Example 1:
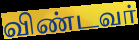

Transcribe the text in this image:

விண்டவர்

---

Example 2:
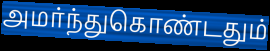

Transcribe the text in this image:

அமர்ந்துகொண்டதும்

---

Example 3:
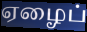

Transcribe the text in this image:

ஏழைப்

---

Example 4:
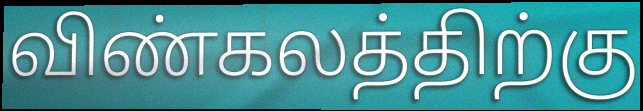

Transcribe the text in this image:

விண்கலத்திற்கு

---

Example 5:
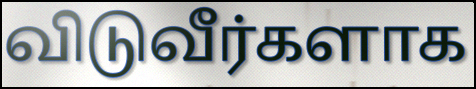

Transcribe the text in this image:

விடுவீர்களாக